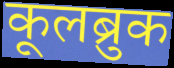
कूलब्रुक